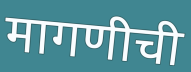
मागणीची